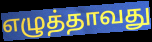
எழுத்தாவது